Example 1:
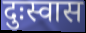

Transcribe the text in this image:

दुःस्वास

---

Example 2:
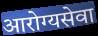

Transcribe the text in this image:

आरोग्यसेवा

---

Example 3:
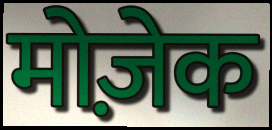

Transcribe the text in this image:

मोज़ेक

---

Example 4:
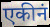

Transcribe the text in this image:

एकीनं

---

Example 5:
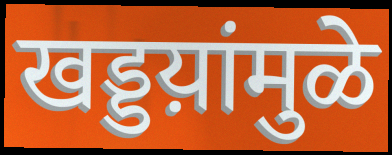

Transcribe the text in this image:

खड्डय़ांमुळे